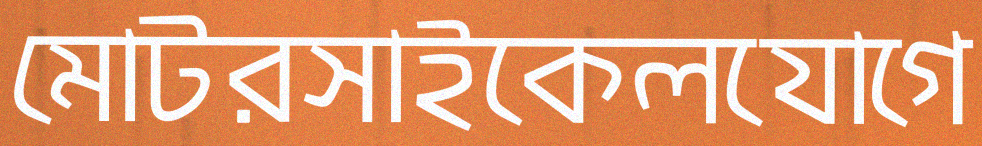
মোটরসাইকেলযোগে